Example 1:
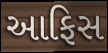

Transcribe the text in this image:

આફિસ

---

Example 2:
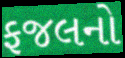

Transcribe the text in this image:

ફજલનો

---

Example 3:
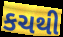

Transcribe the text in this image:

કચથી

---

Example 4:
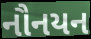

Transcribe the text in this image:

નૌનયન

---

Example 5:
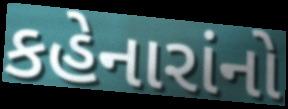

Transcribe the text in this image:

કહેનારાંનો